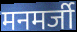
मनमर्जी